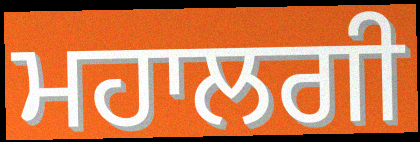
ਮਹਾਲਗੀ